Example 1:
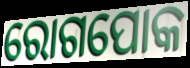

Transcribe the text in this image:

ରୋଗପୋକ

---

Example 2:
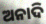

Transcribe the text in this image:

ଅନାଦି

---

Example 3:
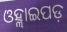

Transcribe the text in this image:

ଓହ୍ଲାଇପଡ଼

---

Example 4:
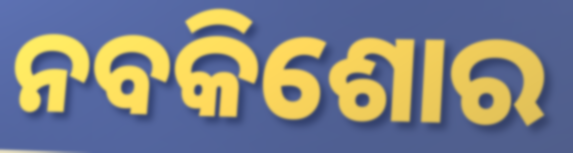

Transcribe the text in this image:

ନବକିଶୋର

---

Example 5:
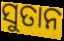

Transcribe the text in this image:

ସୁତାନ